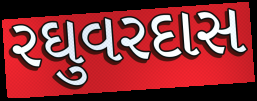
રઘુવરદાસ